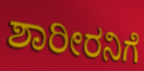
ಶಾರೀರನಿಗೆ